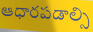
ఆధారపడాల్సి